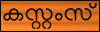
കസ്റ്റംസ്